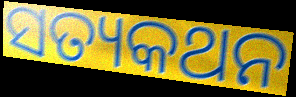
ସତ୍ୟକଥନ